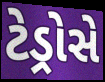
ટેડ્રોસે